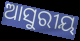
ଆସୁରୀୟ